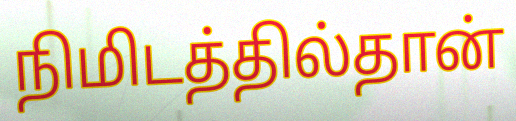
நிமிடத்தில்தான்